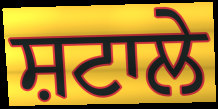
ਸ਼ਟਾਲੇ